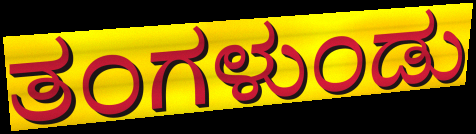
ತಂಗಳುಂಡು